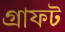
গ্রাফট